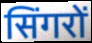
सिंगरों